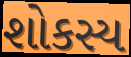
શોકસ્ય